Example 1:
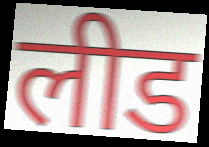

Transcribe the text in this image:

लीड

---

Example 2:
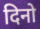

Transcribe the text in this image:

दिनो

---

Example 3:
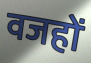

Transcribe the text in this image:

वजहों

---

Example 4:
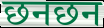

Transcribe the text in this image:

छनछन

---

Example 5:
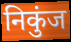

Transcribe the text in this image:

निकुंज